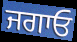
ਜਗਾਓ